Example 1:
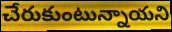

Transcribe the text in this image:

చేరుకుంటున్నాయని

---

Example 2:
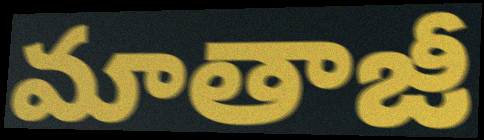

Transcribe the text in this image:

మాతాజీ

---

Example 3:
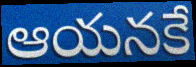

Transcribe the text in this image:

ఆయనకే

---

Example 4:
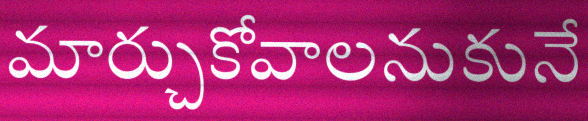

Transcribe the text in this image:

మార్చుకోవాలనుకునే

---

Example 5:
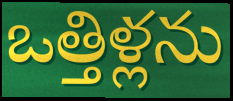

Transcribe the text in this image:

ఒత్తిళ్లను